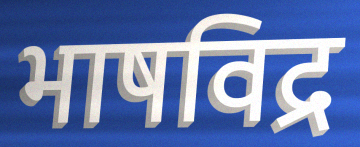
भाषविद्र